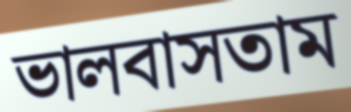
ভালবাসতাম